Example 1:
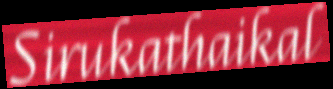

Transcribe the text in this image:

Sirukathaikal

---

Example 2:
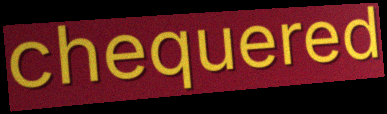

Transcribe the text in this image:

chequered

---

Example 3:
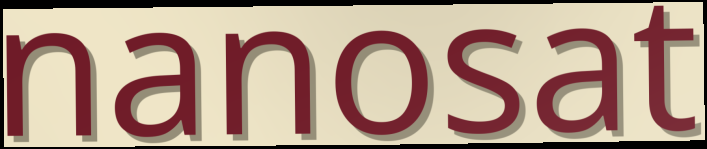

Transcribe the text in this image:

nanosat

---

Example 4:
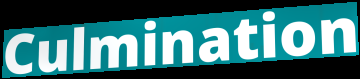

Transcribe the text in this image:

Culmination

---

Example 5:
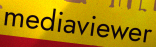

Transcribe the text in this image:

mediaviewer